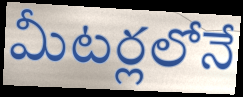
మీటర్లలోనే